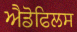
ਐਡੋਫਿਲਸ